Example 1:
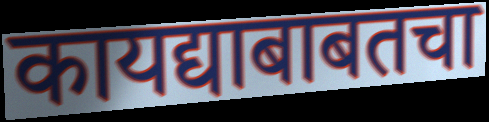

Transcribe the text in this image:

कायद्याबाबतचा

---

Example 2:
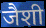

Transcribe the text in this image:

जैशी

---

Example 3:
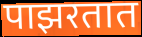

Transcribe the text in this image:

पाझरतात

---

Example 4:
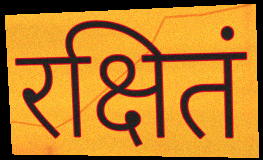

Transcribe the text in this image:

रक्षितं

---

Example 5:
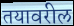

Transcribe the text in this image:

तयावरील